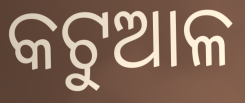
କଟୁଆଳ